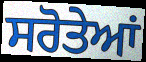
ਸਰੋਤੇਆਂ